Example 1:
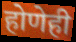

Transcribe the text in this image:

होणेही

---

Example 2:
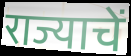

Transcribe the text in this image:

राज्याचें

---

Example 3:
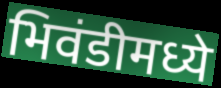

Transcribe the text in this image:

भिवंडीमध्ये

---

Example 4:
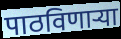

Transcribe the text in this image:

पाठविणाऱ्या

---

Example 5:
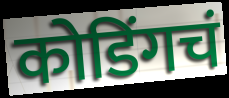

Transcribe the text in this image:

कोडिंगचं